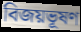
বিজয়ভূষণ